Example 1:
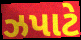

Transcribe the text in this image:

ઝપાટે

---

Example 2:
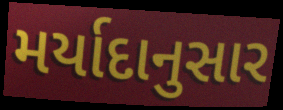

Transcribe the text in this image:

મર્યાદાનુસાર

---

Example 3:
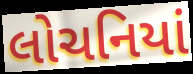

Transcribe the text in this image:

લોચનિયાં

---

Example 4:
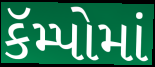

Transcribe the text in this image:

કૅમ્પોમાં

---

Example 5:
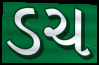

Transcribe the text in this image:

ડચ